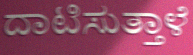
ದಾಟಿಸುತ್ತಾಳೆ